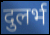
दुलर्भ